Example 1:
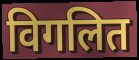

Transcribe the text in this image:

विगलित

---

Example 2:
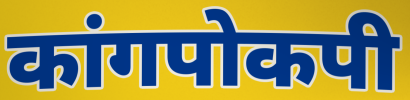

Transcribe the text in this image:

कांगपोकपी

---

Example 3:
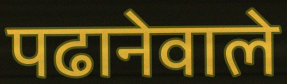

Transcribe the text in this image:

पढानेवाले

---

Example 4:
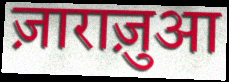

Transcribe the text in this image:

ज़ाराज़ुआ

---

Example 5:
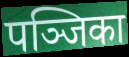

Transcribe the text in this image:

पञ्जिका